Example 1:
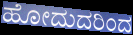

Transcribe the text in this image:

ಹೋದುದರಿಂದ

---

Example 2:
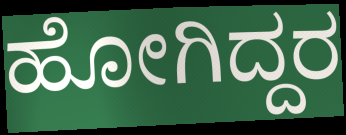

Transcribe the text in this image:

ಹೋಗಿದ್ದರ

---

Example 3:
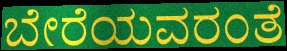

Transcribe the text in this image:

ಬೇರೆಯವರಂತೆ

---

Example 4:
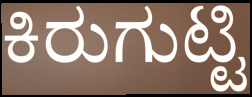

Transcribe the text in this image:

ಕಿರುಗುಟ್ಟಿ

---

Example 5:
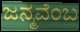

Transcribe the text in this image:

ಜನ್ಮವೆಂಬ